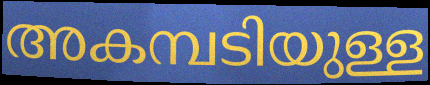
അകമ്പടിയുള്ള